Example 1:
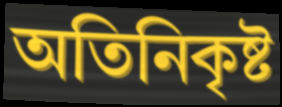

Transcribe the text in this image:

অতিনিকৃষ্ট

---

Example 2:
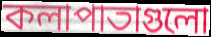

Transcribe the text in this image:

কলাপাতাগুলো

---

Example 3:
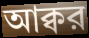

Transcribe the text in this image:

আক্বর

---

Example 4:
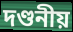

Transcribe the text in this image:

দণ্ডনীয়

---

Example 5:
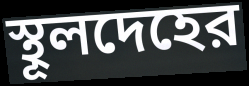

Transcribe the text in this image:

স্থূলদেহের